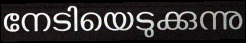
നേടിയെടുക്കുന്നു